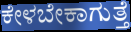
ಕೇಳಬೇಕಾಗುತ್ತೆ